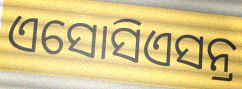
ଏସୋସିଏସନ୍ର